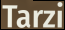
Tarzi